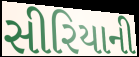
સીરિયાની